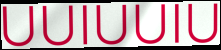
UUIUUIU